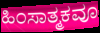
ಹಿಂಸಾತ್ಮಕವೂ